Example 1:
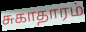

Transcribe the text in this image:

சுகாதாரம்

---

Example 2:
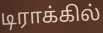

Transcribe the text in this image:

டிராக்கில்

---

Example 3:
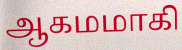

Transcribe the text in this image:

ஆகமமாகி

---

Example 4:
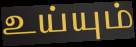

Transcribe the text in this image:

உய்யும்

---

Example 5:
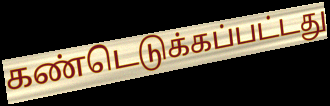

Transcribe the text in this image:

கண்டெடுக்கப்பட்டது